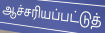
ஆச்சரியப்பட்டுத்